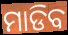
ମାଡିବ